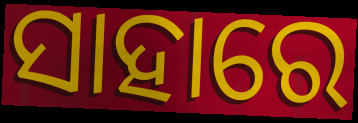
ସାହାରେ